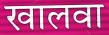
खालवा